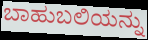
ಬಾಹುಬಲಿಯನ್ನು